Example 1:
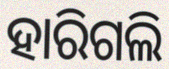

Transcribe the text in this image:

ହାରିଗଲି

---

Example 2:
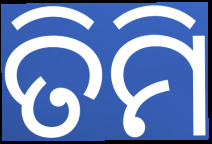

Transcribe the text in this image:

ତିମି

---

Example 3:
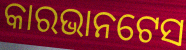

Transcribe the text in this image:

କାରଭାନଟେସ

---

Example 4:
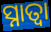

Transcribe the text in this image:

ସ୍ନାତ୍ବା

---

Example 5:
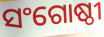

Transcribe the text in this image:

ସଂଗୋଷ୍ଠୀ